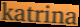
katrina